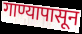
गाण्यापासून